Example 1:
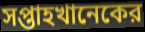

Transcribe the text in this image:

সপ্তাহখানেকের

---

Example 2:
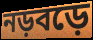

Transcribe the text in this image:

নড়বড়ে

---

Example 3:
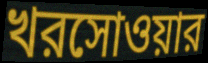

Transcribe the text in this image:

খরসোওয়ার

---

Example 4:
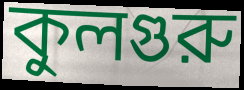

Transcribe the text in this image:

কুলগুরু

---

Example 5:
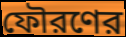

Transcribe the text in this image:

ফৌরণের